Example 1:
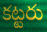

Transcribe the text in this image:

కట్టరు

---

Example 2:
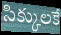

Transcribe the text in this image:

సిక్కులకే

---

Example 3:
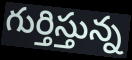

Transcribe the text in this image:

గుర్తిస్తున్న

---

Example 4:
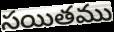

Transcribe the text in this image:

సయితము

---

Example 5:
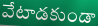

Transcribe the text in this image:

వేటాడకుండా